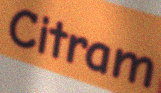
Citram